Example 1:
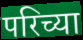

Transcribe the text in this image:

परिच्या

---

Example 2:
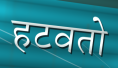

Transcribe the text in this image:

हटवतो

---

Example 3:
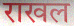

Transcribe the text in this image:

राखल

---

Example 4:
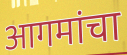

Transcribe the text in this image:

आगमांचा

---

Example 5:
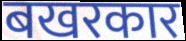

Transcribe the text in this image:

बखरकार